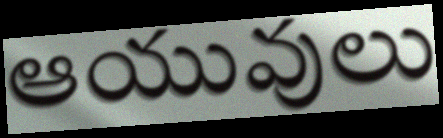
ఆయువులు